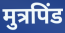
मुत्रपिंड